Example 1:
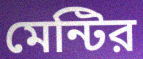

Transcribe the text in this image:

মেন্টির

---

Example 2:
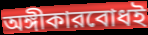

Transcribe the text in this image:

অঙ্গীকারবোধই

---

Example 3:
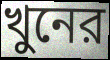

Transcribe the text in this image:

খুনের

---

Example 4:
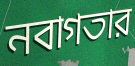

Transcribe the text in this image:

নবাগতার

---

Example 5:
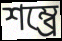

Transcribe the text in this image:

শম্ব্রে